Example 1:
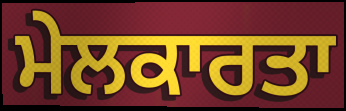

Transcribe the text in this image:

ਮੇਲਕਾਰਤਾ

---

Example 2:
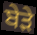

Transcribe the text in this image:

ਬੇੜੇ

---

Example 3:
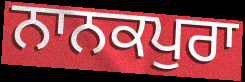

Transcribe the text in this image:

ਨਾਨਕਪੁਰਾ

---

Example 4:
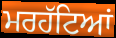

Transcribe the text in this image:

ਮਰਹੱਟਿਆਂ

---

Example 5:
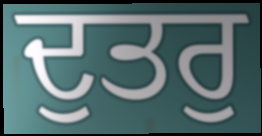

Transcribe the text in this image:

ਦੁਤਰੁ